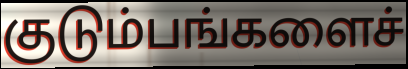
குடும்பங்களைச்